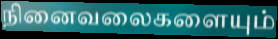
நினைவலைகளையும்